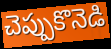
చెప్పుకొనెడి